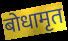
बोधामृत